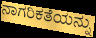
ನಾಗರಿಕತೆಯನ್ನು